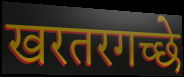
खरतरगच्छे